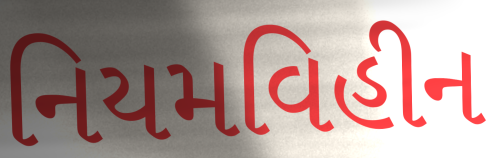
નિયમવિહીન